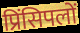
प्रिंसिपलों